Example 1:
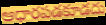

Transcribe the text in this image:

ఆధారపడకూడదు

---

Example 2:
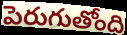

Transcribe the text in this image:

పెరుగుతోంది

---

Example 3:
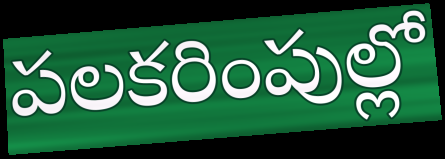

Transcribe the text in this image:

పలకరింపుల్లో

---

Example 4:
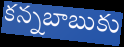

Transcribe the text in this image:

కన్నబాబుకు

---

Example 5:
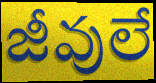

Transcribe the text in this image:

జీవులే